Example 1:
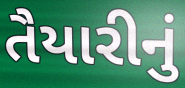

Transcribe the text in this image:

તૈયારીનું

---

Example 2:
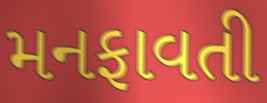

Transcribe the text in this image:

મનફાવતી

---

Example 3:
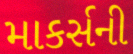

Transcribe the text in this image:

માકર્સની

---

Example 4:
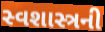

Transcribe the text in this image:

સ્વશાસ્ત્રની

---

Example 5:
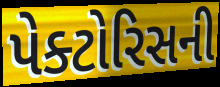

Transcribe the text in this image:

પેક્ટોરિસની